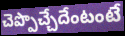
చెప్పొచ్చేదేంటంటే